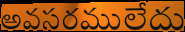
అవసరములేదు